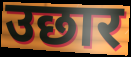
उछार